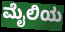
ಮೈಲಿಯ